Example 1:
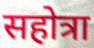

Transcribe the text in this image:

सहोत्रा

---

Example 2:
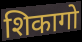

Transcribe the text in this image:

शिकागो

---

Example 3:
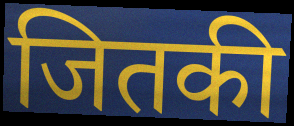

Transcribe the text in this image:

जितकी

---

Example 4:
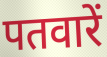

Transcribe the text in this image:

पतवारें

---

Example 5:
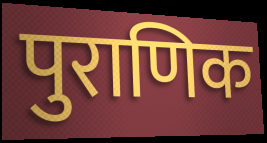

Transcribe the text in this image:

पुराणिक